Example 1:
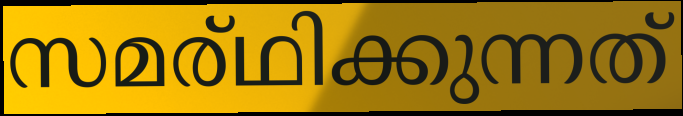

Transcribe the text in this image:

സമര്ഥിക്കുന്നത്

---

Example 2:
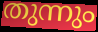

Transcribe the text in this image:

തുന്നും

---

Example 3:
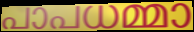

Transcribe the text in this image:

പാപധമ്മാ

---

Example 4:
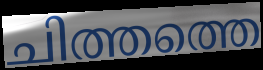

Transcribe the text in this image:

ചിത്തത്തെ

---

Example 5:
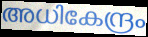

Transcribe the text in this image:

അധികേന്ദ്രം